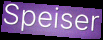
Speiser